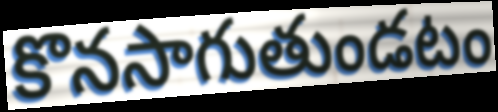
కొనసాగుతుండటం